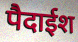
पैदाईश